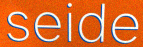
seide